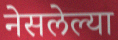
नेसलेल्या